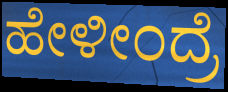
ಹೇಳೀಂದ್ರೆ